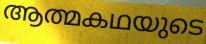
ആത്മകഥയുടെ